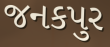
જનકપુર